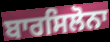
ਬਾਰਸਿਲੋਨਾ